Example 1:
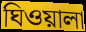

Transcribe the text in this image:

ঘিওয়ালা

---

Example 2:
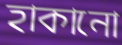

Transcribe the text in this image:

হাকানো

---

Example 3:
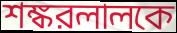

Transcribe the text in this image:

শঙ্করলালকে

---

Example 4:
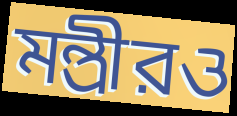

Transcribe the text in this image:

মন্ত্রীরও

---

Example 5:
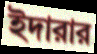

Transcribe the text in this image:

ইদারার